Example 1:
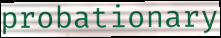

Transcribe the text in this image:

probationary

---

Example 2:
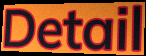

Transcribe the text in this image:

Detail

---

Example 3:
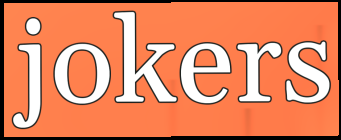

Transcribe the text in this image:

jokers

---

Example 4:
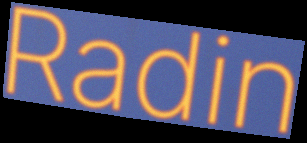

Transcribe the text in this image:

Radin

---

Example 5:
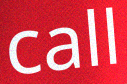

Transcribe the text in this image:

call